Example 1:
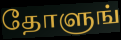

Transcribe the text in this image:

தோளுங்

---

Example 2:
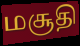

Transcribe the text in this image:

மசூதி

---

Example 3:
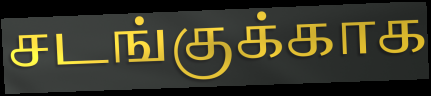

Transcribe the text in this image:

சடங்குக்காக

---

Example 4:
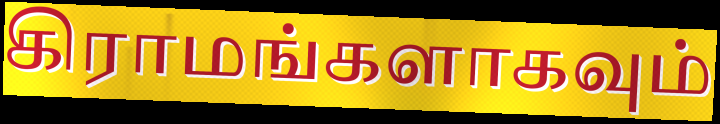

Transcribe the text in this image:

கிராமங்களாகவும்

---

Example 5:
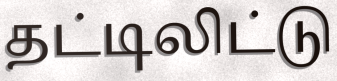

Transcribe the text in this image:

தட்டிலிட்டு